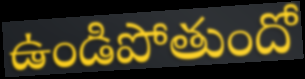
ఉండిపోతుందో